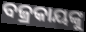
ବଜ୍ରକାୟଙ୍କୁ